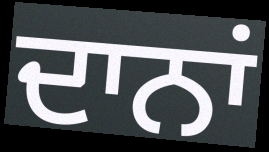
ਦਾਨਾਂ